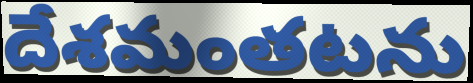
దేశమంతటను